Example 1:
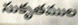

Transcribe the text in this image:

సుకృతముల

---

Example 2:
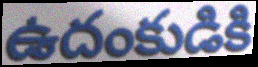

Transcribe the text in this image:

ఉదంకుడికి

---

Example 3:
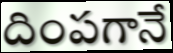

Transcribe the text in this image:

దింపగానే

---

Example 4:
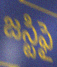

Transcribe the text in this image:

జస్టిఫై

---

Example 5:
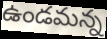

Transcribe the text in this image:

ఉండమన్న